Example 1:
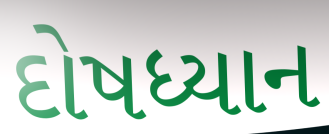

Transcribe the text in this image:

દોષધ્યાન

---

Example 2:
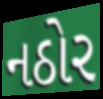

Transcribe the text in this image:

નઠોર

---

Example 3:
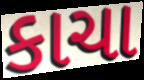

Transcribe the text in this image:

કાચા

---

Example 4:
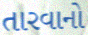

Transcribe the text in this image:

તારવાનો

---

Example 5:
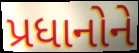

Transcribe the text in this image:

પ્રધાનોને